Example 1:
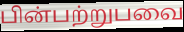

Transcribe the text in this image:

பின்பற்றுபவை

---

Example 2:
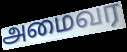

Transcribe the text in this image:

அமைவர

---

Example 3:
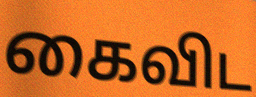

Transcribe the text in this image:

கைவிட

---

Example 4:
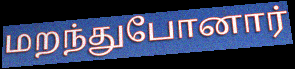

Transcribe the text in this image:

மறந்துபோனார்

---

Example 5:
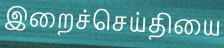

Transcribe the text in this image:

இறைச்செய்தியை